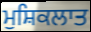
ਮੁਸ਼ਿਕਲਾਤ